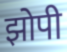
झोपी